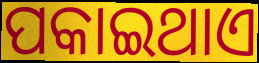
ପକାଇଥାଏ